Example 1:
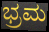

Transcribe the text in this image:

ಭ್ರಮ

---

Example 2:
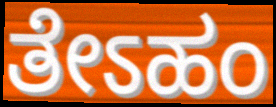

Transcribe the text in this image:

ತೇಽಹಂ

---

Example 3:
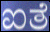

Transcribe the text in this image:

ಐತೆ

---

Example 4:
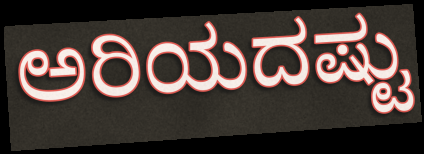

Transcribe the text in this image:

ಅರಿಯದಷ್ಟು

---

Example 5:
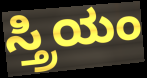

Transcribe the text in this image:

ಸ್ತ್ರಿಯಂ